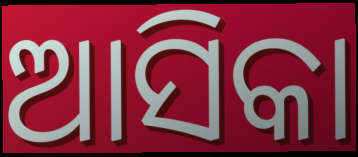
ଆସିକା